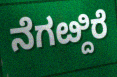
ನೆಗೞ್ದಿರೆ